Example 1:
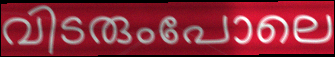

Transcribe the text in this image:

വിടരുംപോലെ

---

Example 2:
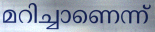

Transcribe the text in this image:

മറിച്ചാണെന്ന്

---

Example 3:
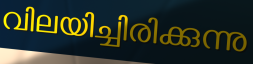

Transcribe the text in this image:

വിലയിച്ചിരിക്കുന്നു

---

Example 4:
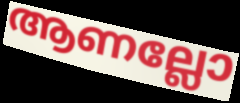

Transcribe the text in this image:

ആണല്ലോ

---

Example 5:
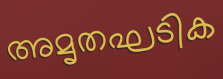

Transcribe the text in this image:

അമൃതഘടിക